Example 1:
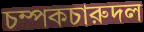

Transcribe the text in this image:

চম্পকচারুদল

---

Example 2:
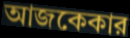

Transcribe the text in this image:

আজকেকার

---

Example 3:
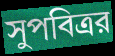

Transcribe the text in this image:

সুপবিত্রর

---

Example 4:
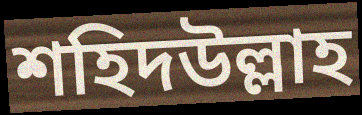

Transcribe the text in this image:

শহিদউল্লাহ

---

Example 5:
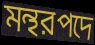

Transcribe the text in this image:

মন্থরপদে